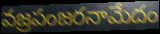
వజ్రపంజరనామేదం